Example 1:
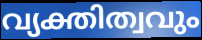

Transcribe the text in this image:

വ്യക്തിത്വവും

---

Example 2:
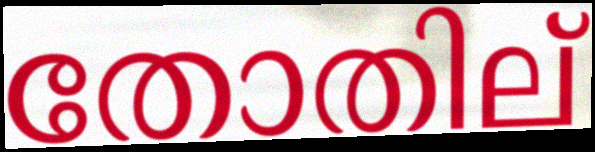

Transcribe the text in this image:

തോതില്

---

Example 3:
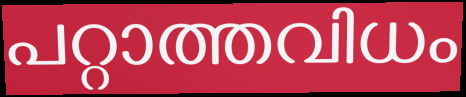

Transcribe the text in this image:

പറ്റാത്തവിധം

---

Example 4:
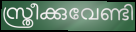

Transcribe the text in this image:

സ്ത്രീക്കുവേണ്ടി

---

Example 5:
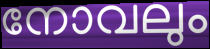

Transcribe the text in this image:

നോവലും